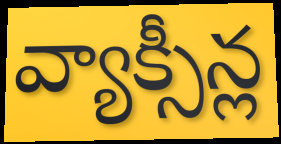
వ్యాక్సీన్ల